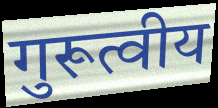
गुरूत्वीय